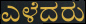
ಎಳೆದರು